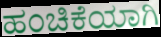
ಹಂಚಿಕೆಯಾಗಿ